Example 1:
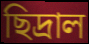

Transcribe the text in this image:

ছিদ্রাল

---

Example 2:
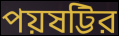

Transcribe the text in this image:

পয়ষট্টির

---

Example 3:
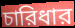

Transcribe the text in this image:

চারিধার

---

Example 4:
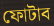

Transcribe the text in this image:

ফোটাব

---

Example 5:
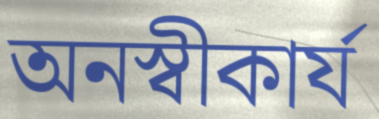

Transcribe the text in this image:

অনস্বীকার্য